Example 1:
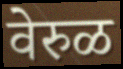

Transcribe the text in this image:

वेरुळ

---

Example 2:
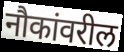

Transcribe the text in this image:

नौकांवरील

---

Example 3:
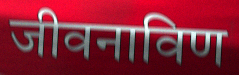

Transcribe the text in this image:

जीवनाविण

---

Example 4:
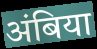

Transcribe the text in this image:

अंबिया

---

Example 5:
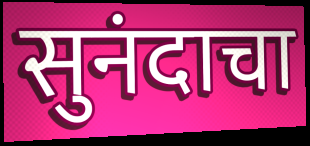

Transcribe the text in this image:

सुनंदाचा